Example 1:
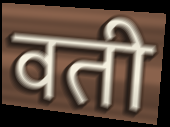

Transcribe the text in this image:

वती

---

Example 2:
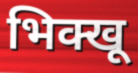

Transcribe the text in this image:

भिक्खू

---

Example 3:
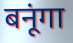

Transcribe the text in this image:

बनूंगा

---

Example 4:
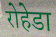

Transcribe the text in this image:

रोहेडा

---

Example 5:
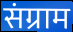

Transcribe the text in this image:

संग्राम